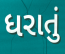
ધરાતું